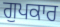
ਗੁਪਕਾਰ